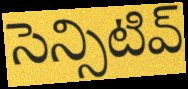
సెన్సిటివ్